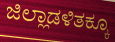
ಜಿಲ್ಲಾಡಳಿತಕ್ಕೂ